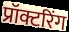
प्रॉक्टरिंग